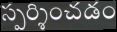
స్పర్శించడం